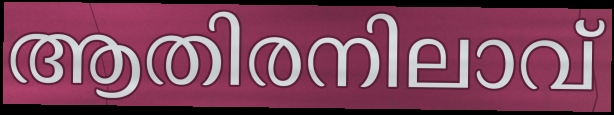
ആതിരനിലാവ്